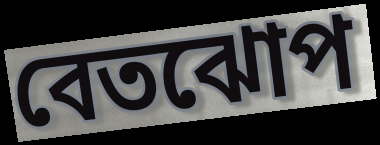
বেতঝোপ